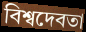
বিশ্বদেবতা